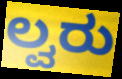
ಲ್ವರು